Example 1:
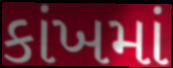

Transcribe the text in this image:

કાંખમાં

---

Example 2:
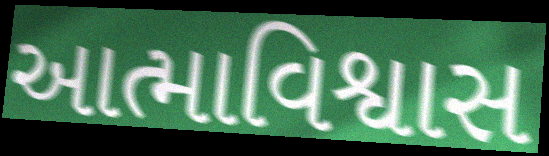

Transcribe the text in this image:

આત્માવિશ્વાસ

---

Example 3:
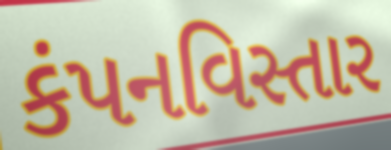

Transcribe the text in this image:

કંપનવિસ્તાર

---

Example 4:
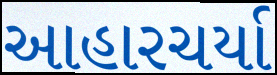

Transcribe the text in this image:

આહારચર્યા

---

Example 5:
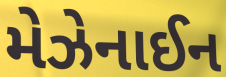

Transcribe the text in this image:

મેઝેનાઈન